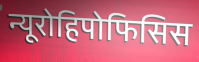
न्यूरोहिपोफिसिस